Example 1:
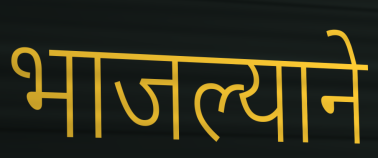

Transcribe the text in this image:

भाजल्याने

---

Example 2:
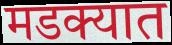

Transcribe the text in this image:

मडक्यात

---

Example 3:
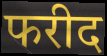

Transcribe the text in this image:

फरीद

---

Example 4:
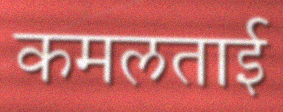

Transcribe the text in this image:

कमलताई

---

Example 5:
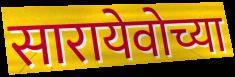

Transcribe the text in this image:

सारायेवोच्या